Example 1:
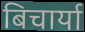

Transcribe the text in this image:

बिचार्या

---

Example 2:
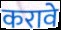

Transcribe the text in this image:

करावे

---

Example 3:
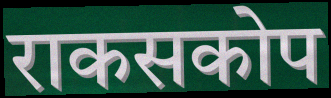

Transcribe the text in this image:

राकसकोप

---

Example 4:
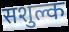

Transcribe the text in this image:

सशुल्क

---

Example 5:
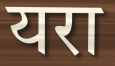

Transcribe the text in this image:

यरा